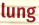
lung